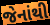
જેનાંથી